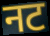
नट